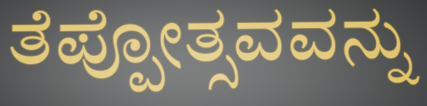
ತೆಪ್ಪೋತ್ಸವವನ್ನು